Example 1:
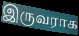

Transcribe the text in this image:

இருவராக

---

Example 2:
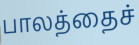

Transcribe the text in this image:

பாலத்தைச்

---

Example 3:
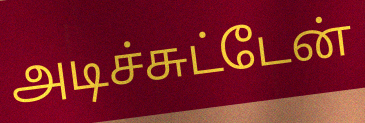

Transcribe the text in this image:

அடிச்சுட்டேன்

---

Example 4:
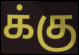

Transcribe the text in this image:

க்கு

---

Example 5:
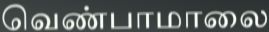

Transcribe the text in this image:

வெண்பாமாலை